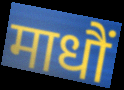
माधौं